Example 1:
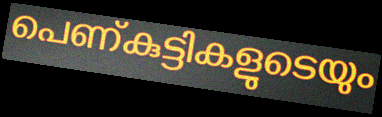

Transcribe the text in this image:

പെണ്കുട്ടികളുടെയും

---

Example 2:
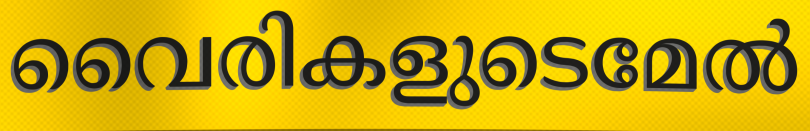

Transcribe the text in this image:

വൈരികളുടെമേൽ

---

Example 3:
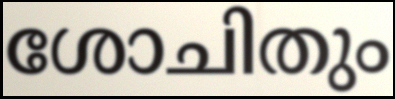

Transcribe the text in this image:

ശോചിതും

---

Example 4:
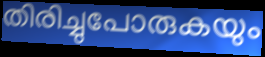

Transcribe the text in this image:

തിരിച്ചുപോരുകയും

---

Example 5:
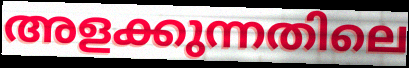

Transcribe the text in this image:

അളക്കുന്നതിലെ